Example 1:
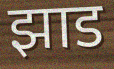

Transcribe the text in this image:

झाड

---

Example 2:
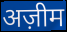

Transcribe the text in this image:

अज़ीम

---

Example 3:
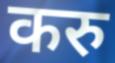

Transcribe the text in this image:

करु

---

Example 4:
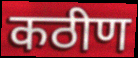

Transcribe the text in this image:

कठीण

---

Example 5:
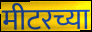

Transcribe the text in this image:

मीटरच्या